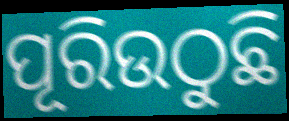
ପୂରିଉଠୁଛି